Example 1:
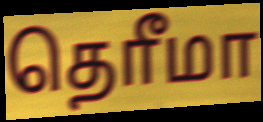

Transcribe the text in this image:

தெரீமா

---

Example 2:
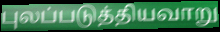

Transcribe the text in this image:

புலப்படுத்தியவாறு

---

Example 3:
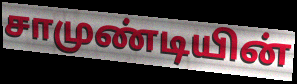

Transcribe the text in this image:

சாமுண்டியின்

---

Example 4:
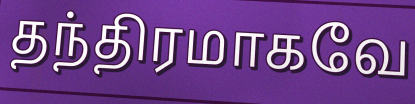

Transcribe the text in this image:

தந்திரமாகவே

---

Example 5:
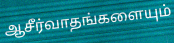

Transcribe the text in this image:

ஆசீர்வாதங்களையும்